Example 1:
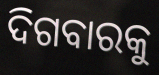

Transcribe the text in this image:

ଦିଗବାରକୁ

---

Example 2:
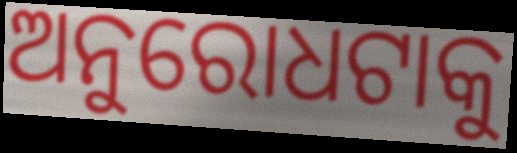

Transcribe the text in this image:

ଅନୁରୋଧଟାକୁ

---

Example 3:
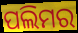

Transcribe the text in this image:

ପଲିମର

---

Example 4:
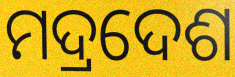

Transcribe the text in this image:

ମଦ୍ରଦେଶ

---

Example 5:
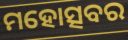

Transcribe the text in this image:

ମହୋତ୍ସବର